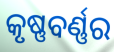
କୃଷ୍ଣବର୍ଣ୍ଣର